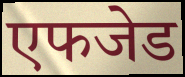
एफजेड